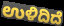
ಉಳಿದಿದೆ